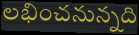
లభించనున్నది